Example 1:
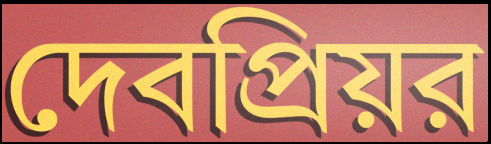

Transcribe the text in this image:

দেবপ্রিয়র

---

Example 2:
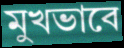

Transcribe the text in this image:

মুখভাবে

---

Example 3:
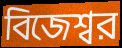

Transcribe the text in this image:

বিজেশ্বর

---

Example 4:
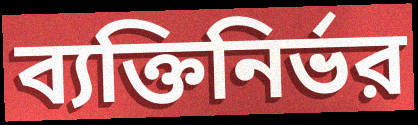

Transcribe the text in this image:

ব্যক্তিনির্ভর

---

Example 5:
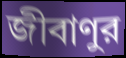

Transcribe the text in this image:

জীবাণুর